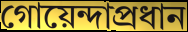
গোয়েন্দাপ্রধান